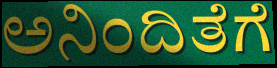
ಅನಿಂದಿತೆಗೆ